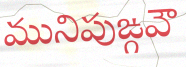
మునిపుఙ్గవౌ